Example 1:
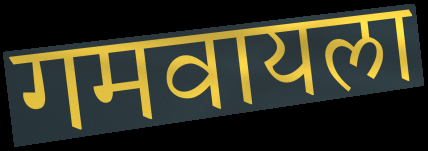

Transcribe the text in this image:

गमवायला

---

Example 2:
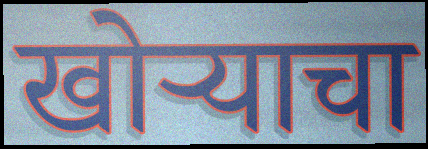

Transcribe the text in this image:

खोऱ्याचा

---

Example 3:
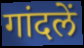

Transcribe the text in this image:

गांदलें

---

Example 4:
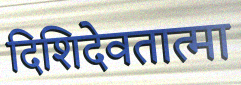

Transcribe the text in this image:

दिशिदेवतात्मा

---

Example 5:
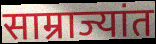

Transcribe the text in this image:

साम्राज्यांत